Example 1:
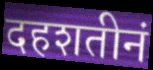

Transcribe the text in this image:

दहशतीनं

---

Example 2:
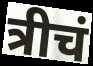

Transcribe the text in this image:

त्रीचं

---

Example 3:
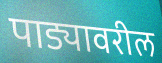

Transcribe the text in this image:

पाड्यावरील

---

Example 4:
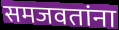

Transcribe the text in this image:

समजवतांना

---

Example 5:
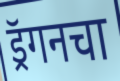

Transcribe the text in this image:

ड्रॅगनचा